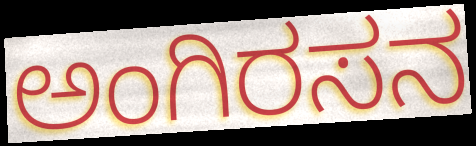
ಅಂಗಿರಸನ